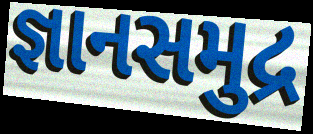
જ્ઞાનસમુદ્ર